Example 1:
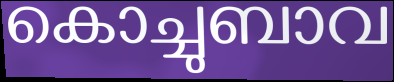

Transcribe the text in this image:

കൊച്ചുബാവ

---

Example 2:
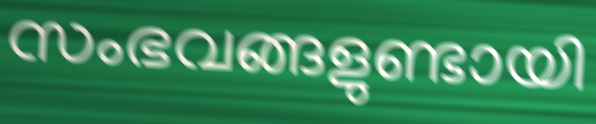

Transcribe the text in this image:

സംഭവങ്ങളുണ്ടായി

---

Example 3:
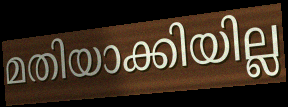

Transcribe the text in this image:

മതിയാക്കിയില്ല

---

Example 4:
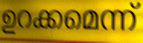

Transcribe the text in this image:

ഉറക്കമെന്ന്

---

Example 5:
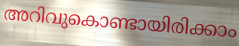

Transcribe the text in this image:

അറിവുകൊണ്ടായിരിക്കാം